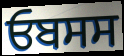
ਓਬਸਸ